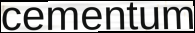
cementum